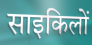
साइकिलों